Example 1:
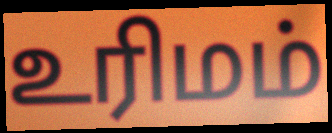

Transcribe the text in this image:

உரிமம்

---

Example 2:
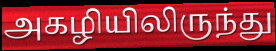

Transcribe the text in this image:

அகழியிலிருந்து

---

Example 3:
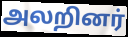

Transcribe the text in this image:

அலறினர்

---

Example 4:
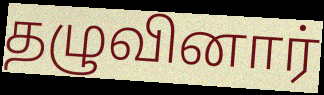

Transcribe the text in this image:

தழுவினார்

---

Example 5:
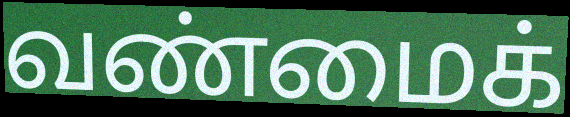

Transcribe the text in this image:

வண்மைக்